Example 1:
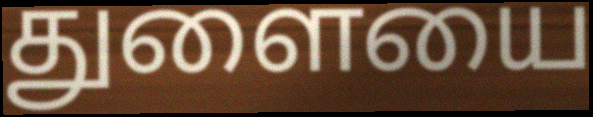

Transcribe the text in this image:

துளையை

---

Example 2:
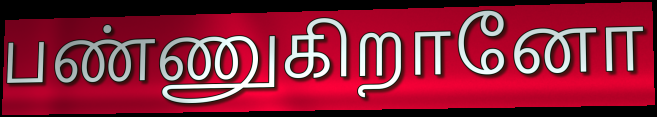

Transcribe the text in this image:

பண்ணுகிறானோ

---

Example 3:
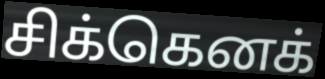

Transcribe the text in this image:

சிக்கெனக்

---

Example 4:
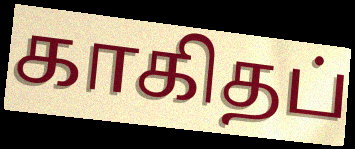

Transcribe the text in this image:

காகிதப்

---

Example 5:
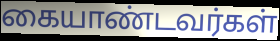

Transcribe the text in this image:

கையாண்டவர்கள்